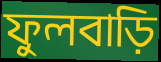
ফুলবাড়ি